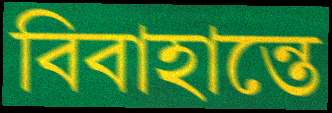
বিবাহান্তে